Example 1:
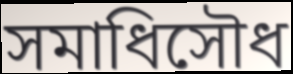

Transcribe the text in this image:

সমাধিসৌধ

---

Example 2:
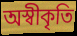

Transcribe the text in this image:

অস্বীকৃতি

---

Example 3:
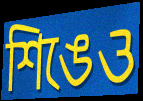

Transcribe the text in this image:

শিঙেও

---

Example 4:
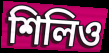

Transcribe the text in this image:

শিলিও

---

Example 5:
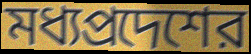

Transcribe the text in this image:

মধ্যপ্রদেশের